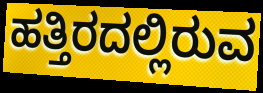
ಹತ್ತಿರದಲ್ಲಿರುವ